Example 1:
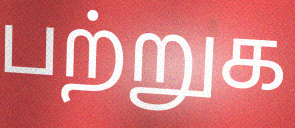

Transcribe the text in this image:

பற்றுக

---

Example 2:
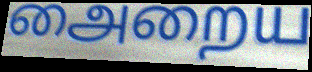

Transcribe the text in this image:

அைறைய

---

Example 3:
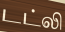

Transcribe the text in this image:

டட்லி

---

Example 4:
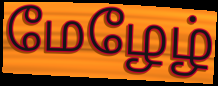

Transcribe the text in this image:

மேழேழ்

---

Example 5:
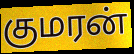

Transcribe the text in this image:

குமரன்